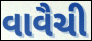
વાવૈચી